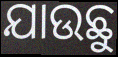
ଯାଉଛୁ